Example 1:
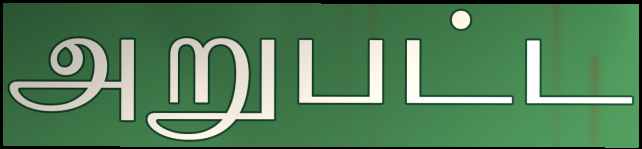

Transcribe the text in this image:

அறுபட்ட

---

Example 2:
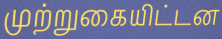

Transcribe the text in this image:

முற்றுகையிட்டன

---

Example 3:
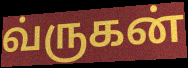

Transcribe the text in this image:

வ்ருகன்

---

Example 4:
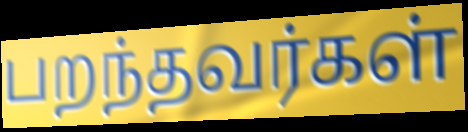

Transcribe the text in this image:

பறந்தவர்கள்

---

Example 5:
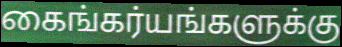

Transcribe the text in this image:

கைங்கர்யங்களுக்கு